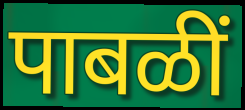
पाबळीं